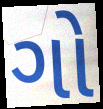
ગો